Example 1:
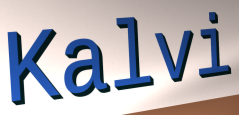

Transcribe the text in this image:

Kalvi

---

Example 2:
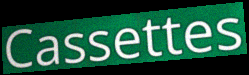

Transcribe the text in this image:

Cassettes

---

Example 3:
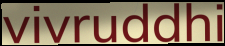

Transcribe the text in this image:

vivruddhi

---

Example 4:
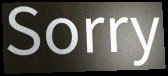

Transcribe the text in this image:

Sorry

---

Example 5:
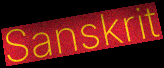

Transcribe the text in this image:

Sanskrit